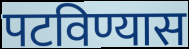
पटविण्यास